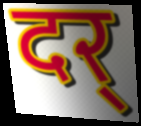
दर्